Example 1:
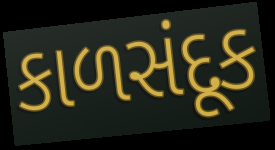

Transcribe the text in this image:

કાળસંદૂક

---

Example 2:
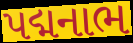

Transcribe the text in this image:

પદ્મનાભ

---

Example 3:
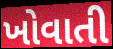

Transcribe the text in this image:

ખોવાતી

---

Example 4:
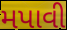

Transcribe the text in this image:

મપાવી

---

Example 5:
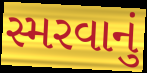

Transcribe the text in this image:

સ્મરવાનું